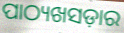
ପାଠ୍ୟଖସଡ଼ାର